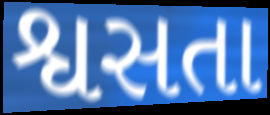
શ્વસતા